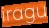
iragu